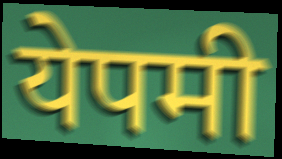
येपमी